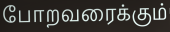
போறவரைக்கும்